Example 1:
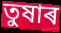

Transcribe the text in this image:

তুষাৰ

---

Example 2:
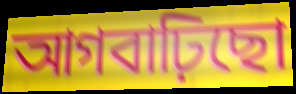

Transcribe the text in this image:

আগবাঢ়িছো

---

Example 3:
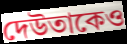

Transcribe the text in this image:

দেউতাকেও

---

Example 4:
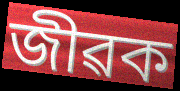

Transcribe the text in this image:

জীৱক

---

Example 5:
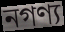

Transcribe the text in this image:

নগণ্য